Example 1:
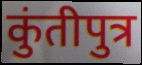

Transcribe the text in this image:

कुंतीपुत्र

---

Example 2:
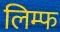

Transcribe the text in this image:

लिम्फ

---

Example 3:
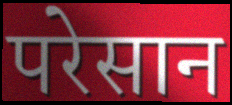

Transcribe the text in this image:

परेसान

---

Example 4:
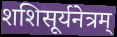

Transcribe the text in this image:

शशिसूर्यनेत्रम्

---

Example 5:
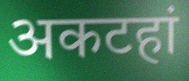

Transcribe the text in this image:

अकटहां